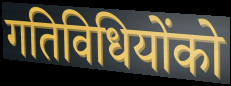
गतिविधियोंको